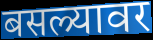
बसल्यावर